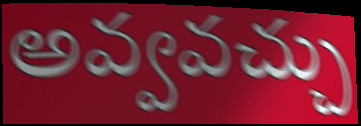
అవ్వవచ్చు